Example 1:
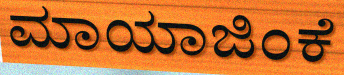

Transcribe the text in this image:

ಮಾಯಾಜಿಂಕೆ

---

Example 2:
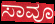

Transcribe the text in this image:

ಸಾವೂ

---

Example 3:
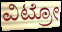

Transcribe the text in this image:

ವಿಟ್ರೋ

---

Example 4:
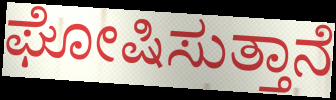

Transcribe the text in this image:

ಘೋಷಿಸುತ್ತಾನೆ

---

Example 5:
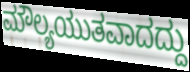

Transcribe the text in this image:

ಮೌಲ್ಯಯುತವಾದದ್ದು